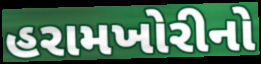
હરામખોરીનો